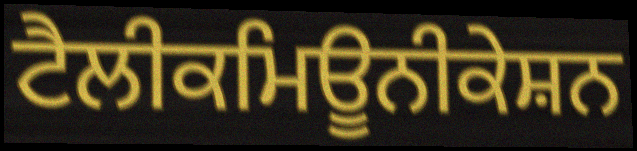
ਟੈਲੀਕਮਿਊਨੀਕੇਸ਼ਨ